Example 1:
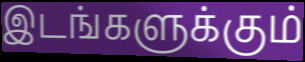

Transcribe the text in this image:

இடங்களுக்கும்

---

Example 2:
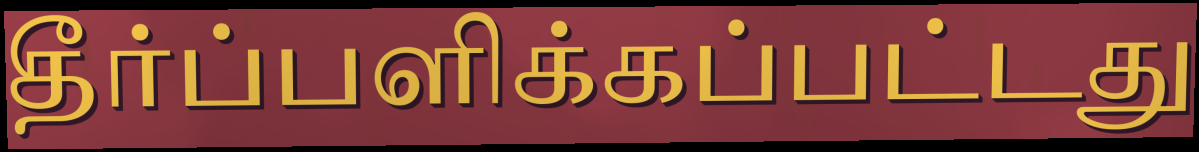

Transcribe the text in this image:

தீர்ப்பளிக்கப்பட்டது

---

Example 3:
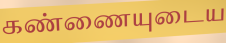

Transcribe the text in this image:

கண்ணையுடைய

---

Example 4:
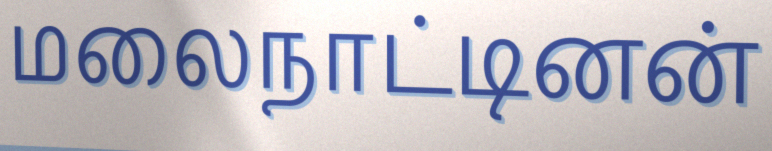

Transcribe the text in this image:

மலைநாட்டினன்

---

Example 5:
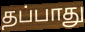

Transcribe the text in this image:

தப்பாது